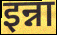
इन्ना